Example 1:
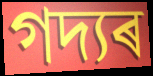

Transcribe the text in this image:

গদ্যৰ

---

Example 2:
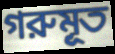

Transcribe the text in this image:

গৰুমূত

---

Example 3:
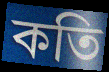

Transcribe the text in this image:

কতি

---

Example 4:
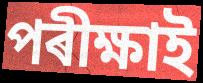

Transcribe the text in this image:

পৰীক্ষাই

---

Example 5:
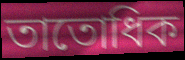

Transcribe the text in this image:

তাতোধিক